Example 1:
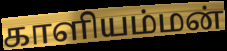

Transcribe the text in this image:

காளியம்மன்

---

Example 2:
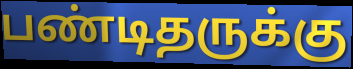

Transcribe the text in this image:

பண்டிதருக்கு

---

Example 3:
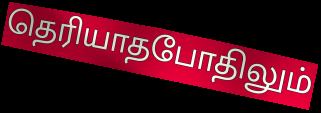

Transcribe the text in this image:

தெரியாதபோதிலும்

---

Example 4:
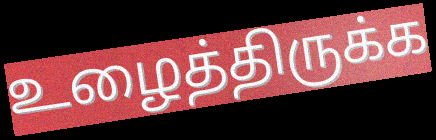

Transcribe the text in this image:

உழைத்திருக்க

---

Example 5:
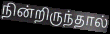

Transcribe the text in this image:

நின்றிருந்தால்